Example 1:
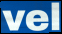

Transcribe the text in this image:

vel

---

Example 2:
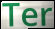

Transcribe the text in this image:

Ter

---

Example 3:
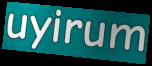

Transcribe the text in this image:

uyirum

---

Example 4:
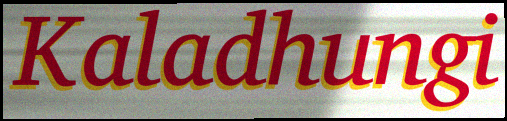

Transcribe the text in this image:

Kaladhungi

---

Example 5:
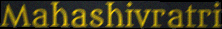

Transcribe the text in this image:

Mahashivratri